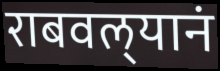
राबवल्यानं